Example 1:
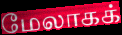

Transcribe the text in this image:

மேலாகக்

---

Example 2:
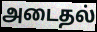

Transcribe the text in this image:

அடைதல்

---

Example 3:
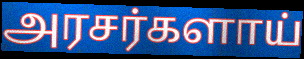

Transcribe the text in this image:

அரசர்களாய்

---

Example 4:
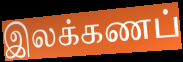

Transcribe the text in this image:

இலக்கணப்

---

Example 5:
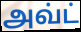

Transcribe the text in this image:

அவ்ட்